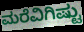
ಮರೆವಿಗಿಷ್ಟು